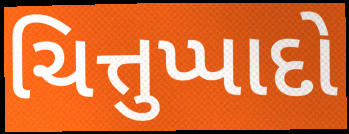
ચિત્તુપ્પાદો